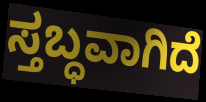
ಸ್ತಬ್ಧವಾಗಿದೆ